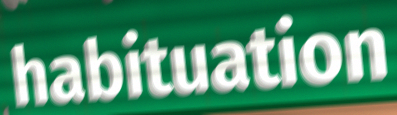
habituation